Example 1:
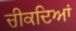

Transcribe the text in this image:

ਚੀਕਦਿਆਂ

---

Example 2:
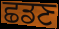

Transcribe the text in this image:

ਛਡਣ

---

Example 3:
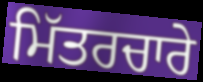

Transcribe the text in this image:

ਮਿੱਤਰਚਾਰੇ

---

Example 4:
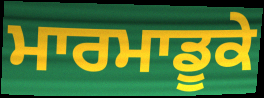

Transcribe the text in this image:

ਮਾਰਮਾਡੂਕੇ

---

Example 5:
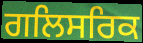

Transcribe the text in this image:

ਗਲਿਸਰਿਕ